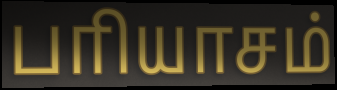
பரியாசம்